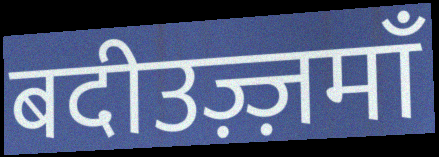
बदीउज़्ज़माँ